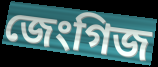
জেংগিজ